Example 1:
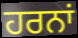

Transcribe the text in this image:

ਹਰਨਾਂ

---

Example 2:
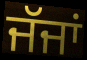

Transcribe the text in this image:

ਜੱਜਾਂ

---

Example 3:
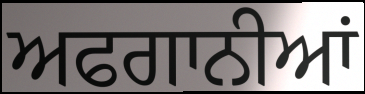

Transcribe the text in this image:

ਅਫਗਾਨੀਆਂ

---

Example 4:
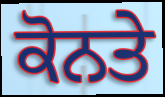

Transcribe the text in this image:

ਕੋਨਤੇ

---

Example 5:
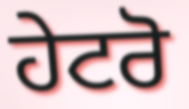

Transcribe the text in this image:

ਹੇਟਰੋ